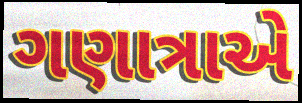
ગણાત્રાએ